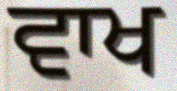
ਵਾਖ